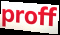
proff